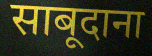
साबूदाना